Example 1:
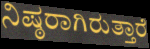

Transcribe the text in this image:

ನಿಷ್ಠರಾಗಿರುತ್ತಾರೆ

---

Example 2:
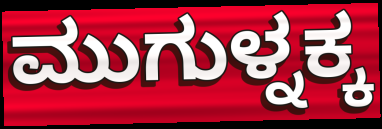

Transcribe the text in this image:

ಮುಗುಳ್ನಕ್ಕ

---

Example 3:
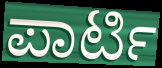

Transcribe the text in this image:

ಪಾರ್ಟಿ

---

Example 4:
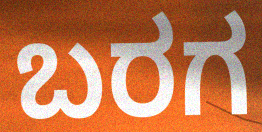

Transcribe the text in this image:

ಬರಗ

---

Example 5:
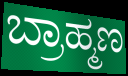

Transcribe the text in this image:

ಬ್ರಾಹ್ಮಣ